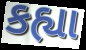
કહ્યા